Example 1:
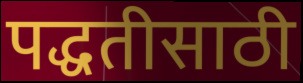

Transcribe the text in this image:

पद्धतीसाठी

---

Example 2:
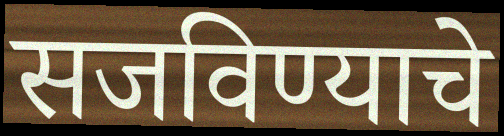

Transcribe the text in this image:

सजविण्याचे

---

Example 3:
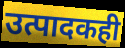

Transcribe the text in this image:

उत्पादकही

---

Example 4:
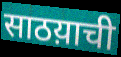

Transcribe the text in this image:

साठय़ाची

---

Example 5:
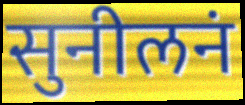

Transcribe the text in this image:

सुनीलनं